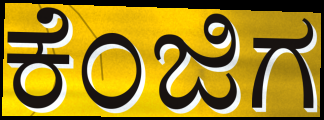
ಕೆಂಜಿಗ